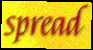
spread